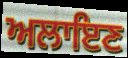
ਅਲਾਇਣ